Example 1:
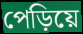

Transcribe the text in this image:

পেড়িয়ে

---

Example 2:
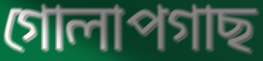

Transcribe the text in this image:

গোলাপগাছ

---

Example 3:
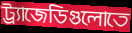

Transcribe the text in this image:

ট্র্যাজেডিগুলোতে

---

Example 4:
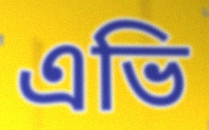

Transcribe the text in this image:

এভি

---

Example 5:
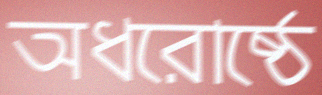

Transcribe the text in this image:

অধরোষ্ঠে